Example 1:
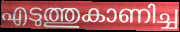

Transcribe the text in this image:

എടുത്തുകാണിച്ച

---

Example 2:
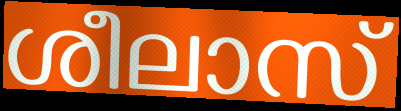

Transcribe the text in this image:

ശീലാസ്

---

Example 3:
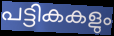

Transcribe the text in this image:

പട്ടികകളും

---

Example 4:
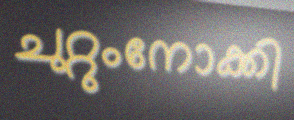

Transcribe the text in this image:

ചുറ്റുംനോക്കി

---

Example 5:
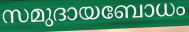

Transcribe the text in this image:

സമുദായബോധം